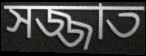
সজ্জাত